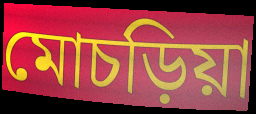
মোচড়িয়া